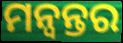
ମନ୍ୱନ୍ତର